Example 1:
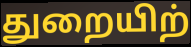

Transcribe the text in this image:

துறையிற்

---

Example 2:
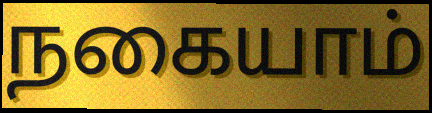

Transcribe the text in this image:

நகையாம்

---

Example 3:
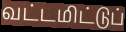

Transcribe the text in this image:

வட்டமிட்டுப்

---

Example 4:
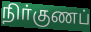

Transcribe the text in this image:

நிர்குணப்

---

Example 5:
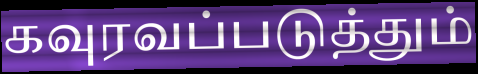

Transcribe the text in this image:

கவுரவப்படுத்தும்